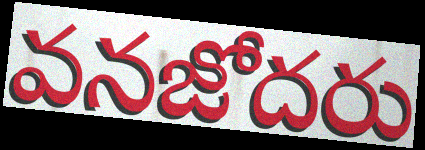
వనజోదరు